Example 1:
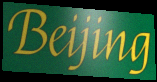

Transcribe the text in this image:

Beijing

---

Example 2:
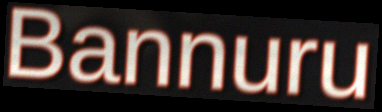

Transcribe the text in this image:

Bannuru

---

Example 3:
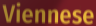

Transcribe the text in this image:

Viennese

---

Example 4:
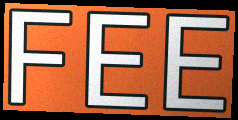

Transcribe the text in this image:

FEE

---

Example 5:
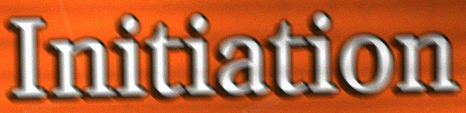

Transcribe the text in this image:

Initiation